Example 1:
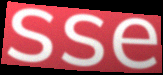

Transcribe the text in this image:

sse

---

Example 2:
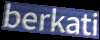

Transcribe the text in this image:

berkati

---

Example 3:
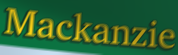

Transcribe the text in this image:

Mackanzie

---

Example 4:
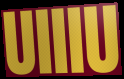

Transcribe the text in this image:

UIIIU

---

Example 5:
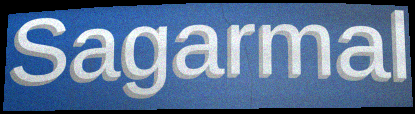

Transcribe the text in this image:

Sagarmal